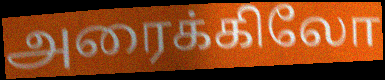
அரைக்கிலோ